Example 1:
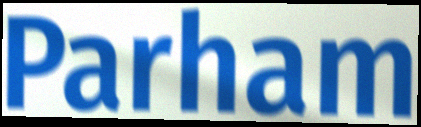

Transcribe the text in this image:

Parham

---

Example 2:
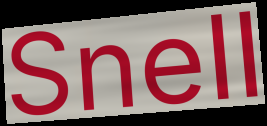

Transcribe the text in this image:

Snell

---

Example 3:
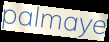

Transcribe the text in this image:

palmaye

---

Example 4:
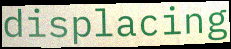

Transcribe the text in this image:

displacing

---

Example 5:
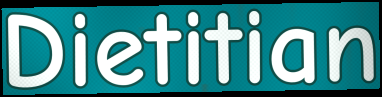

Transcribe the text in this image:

Dietitian